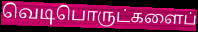
வெடிபொருட்களைப்